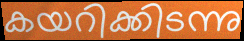
കയറിക്കിടന്നു